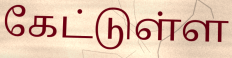
கேட்டுள்ள